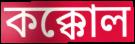
কক্কোল